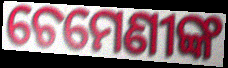
ଚେମେଣୀଙ୍କ